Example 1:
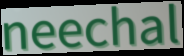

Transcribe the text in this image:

neechal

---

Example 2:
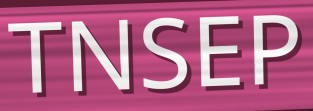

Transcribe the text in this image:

TNSEP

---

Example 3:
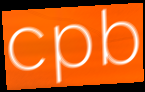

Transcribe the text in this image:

cpb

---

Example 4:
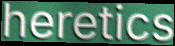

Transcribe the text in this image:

heretics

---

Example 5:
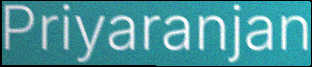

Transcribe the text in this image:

Priyaranjan